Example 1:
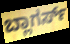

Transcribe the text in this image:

ಬ್ಲಾಗರ್ಸ್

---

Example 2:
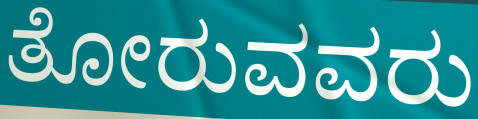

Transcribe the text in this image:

ತೋರುವವರು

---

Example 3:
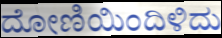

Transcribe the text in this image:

ದೋಣಿಯಿಂದಿಳಿದು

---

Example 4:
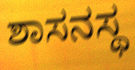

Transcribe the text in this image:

ಶಾಸನಸ್ಥ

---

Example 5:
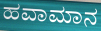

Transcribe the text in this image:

ಹವಾಮಾನ